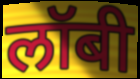
लॉबी